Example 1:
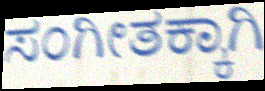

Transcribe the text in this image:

ಸಂಗೀತಕ್ಕಾಗಿ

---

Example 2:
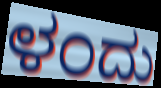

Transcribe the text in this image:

ಳಂದು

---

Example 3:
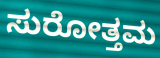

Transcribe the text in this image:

ಸುರೋತ್ತಮ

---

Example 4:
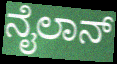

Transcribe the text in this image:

ನೈಲಾನ್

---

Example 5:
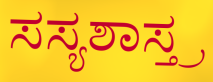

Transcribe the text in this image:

ಸಸ್ಯಶಾಸ್ತ್ರ